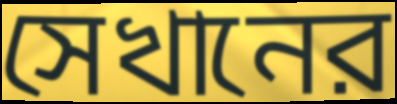
সেখানের